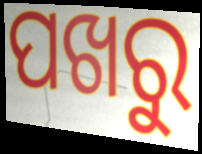
ପଖରୁ